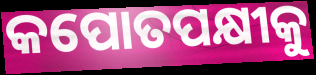
କପୋତପକ୍ଷୀକୁ